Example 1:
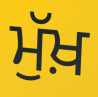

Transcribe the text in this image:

ਮੁੱਖ਼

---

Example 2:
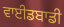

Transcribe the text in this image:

ਵਾਈਡਬਾਡੀ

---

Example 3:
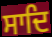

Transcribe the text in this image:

ਸਾਦਿ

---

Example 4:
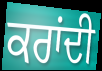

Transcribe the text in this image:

ਕਰਾਂਦੀ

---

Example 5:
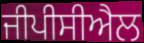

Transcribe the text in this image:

ਜੀਪੀਸੀਐਲ